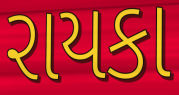
રાયકા